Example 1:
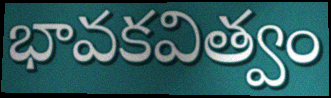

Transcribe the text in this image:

భావకవిత్వం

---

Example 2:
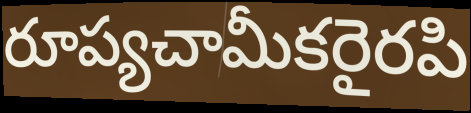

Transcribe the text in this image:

రూప్యచామీకరైరపి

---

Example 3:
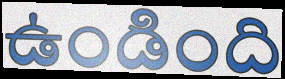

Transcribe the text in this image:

ఉండింది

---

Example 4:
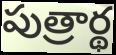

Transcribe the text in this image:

పుత్రార్థ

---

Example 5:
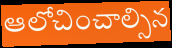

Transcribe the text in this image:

ఆలోచించాల్సిన